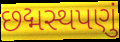
છદ્મસ્થપણું